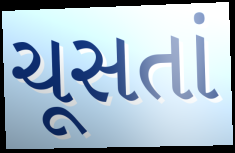
ચૂસતાં